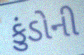
કુંડોની